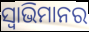
ସ୍ଵାଭିମାନର